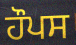
ਹੌਪਸ